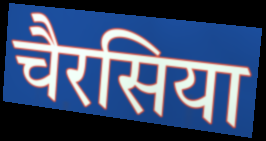
चैरसिया